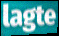
lagte